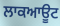
ਲਾਕਆਊਟ